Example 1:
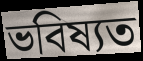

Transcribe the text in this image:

ভবিষ্যত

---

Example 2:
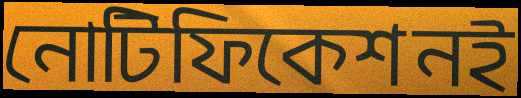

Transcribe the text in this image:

নোটিফিকেশনই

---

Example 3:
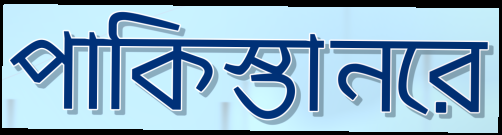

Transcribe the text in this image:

পাকিস্তানরে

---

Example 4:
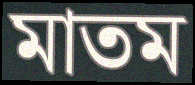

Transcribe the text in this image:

মাতম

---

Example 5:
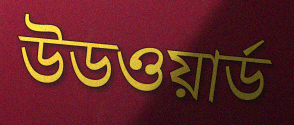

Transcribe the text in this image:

উডওয়ার্ড